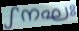
ഽനഘഃ